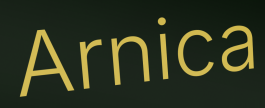
Arnica